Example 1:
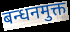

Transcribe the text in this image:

बन्धनमुक्त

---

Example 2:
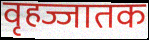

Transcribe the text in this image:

वृहज्जातक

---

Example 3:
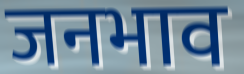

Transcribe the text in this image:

जनभाव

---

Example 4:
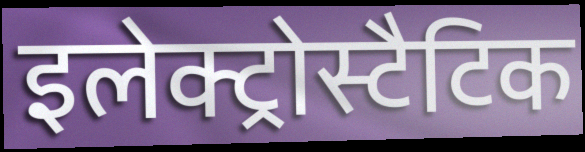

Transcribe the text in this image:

इलेक्ट्रोस्टैटिक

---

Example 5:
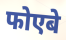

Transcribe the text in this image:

फोएबे